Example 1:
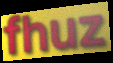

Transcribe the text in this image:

fhuz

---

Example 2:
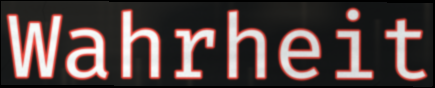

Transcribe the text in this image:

Wahrheit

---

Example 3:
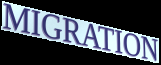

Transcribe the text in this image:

MIGRATION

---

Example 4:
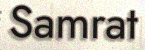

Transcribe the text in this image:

Samrat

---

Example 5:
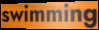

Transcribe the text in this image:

swimming